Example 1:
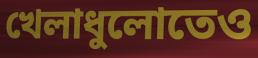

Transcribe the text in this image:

খেলাধুলোতেও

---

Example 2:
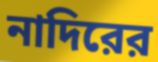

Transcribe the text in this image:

নাদিরের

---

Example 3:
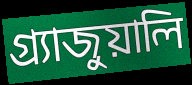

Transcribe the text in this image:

গ্র্যাজুয়ালি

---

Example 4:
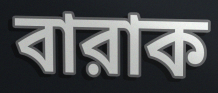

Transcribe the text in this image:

বারাক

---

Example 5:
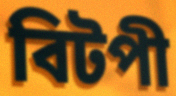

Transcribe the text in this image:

বিটপী